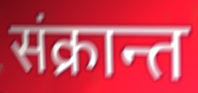
संक्रान्त